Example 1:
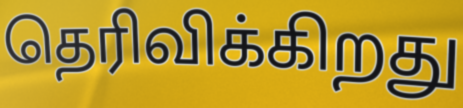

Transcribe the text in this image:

தெரிவிக்கிறது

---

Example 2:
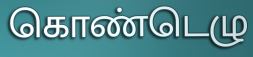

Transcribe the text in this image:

கொண்டெழு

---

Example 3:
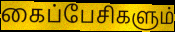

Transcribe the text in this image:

கைப்பேசிகளும்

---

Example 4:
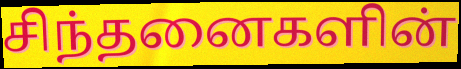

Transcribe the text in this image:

சிந்தனைகளின்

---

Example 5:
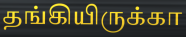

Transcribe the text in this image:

தங்கியிருக்கா